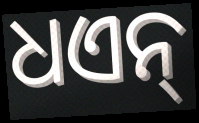
ଧଏନ୍